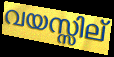
വയസ്സില്